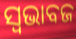
ସ୍ୱଭାବଜ